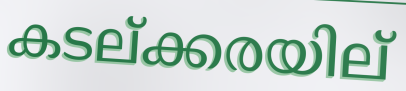
കടല്ക്കരയില്